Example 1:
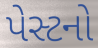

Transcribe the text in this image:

પેસ્ટનો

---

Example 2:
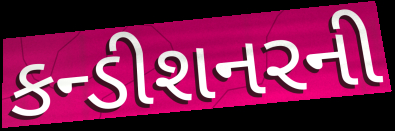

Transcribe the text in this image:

કન્ડીશનરની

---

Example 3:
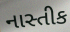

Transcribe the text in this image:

નાસ્તીક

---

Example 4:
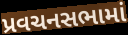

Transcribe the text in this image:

પ્રવચનસભામાં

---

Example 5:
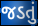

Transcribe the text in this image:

જડતું